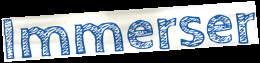
Immerser